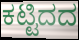
ಕಟ್ಟಿದದ